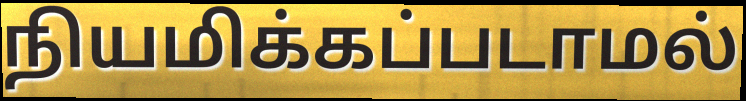
நியமிக்கப்படாமல்